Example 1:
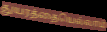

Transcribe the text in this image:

துயரத்தையெல்லாம்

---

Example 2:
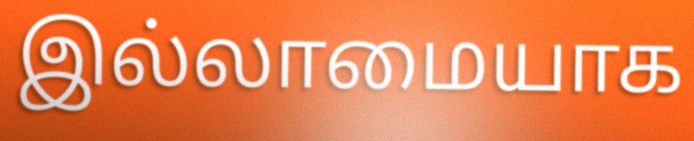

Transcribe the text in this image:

இல்லாமையாக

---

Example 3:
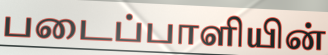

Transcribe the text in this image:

படைப்பாளியின்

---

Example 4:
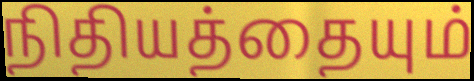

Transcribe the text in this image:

நிதியத்தையும்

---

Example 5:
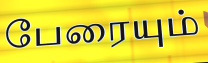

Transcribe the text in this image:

பேரையும்